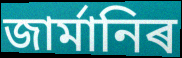
জাৰ্মানিৰ